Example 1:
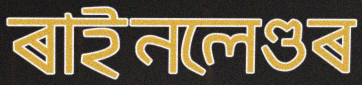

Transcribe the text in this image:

ৰাইনলেণ্ডৰ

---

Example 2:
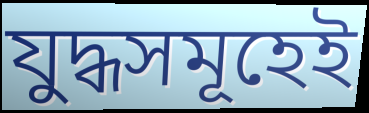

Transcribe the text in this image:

যুদ্ধসমূহেই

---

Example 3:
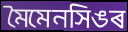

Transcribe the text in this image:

মৈমেনসিঙৰ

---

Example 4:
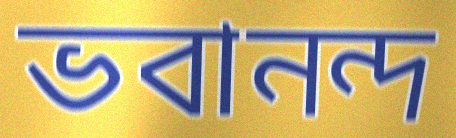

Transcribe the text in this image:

ভবানন্দ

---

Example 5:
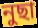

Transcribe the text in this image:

নুছা